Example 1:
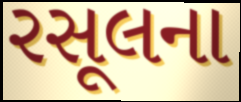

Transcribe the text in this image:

રસૂલના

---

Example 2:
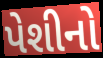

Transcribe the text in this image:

પેશીનો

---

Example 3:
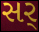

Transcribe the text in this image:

સર્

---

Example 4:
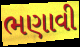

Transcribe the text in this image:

ભણાવી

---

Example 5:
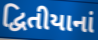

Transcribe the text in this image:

દ્વિતીયાનાં